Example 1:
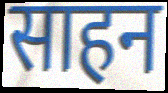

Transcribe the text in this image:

साहन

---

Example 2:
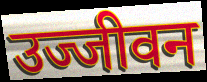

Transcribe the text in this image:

उज्जीवन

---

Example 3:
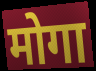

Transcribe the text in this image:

मोगा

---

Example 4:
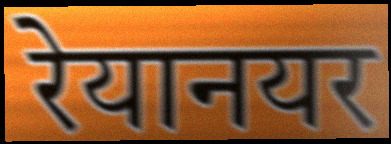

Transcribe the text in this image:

रेयानयर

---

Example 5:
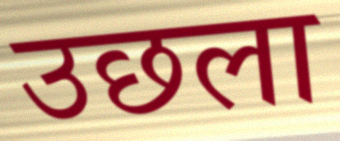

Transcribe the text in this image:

उछला